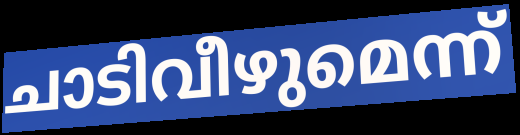
ചാടിവീഴുമെന്ന്